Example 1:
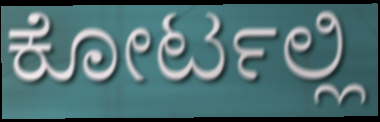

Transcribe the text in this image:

ಕೋರ್ಟಲ್ಲಿ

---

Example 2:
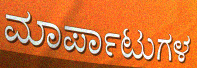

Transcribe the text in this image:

ಮಾರ್ಪಾಟುಗಳ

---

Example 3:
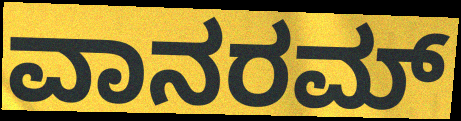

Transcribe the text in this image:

ವಾನರಮ್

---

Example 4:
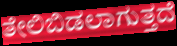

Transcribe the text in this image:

ತೇಲಿಬಿಡಲಾಗುತ್ತದೆ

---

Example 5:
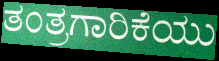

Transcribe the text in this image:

ತಂತ್ರಗಾರಿಕೆಯು